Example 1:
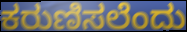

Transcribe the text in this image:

ಕರುಣಿಸಲೆಂದು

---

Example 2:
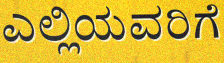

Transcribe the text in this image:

ಎಲ್ಲಿಯವರಿಗೆ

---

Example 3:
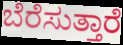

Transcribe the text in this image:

ಬೆರೆಸುತ್ತಾರೆ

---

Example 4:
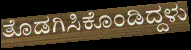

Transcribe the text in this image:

ತೊಡಗಿಸಿಕೊಂಡಿದ್ದಳು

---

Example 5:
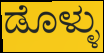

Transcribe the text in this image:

ಡೊಳ್ಳು